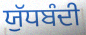
ਯੁੱਧਬੰਦੀ